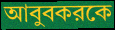
আবুবকরকে